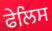
ਫੇਲਿਸ